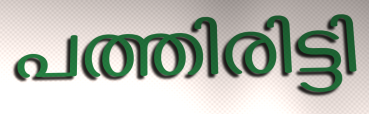
പത്തിരിട്ടി